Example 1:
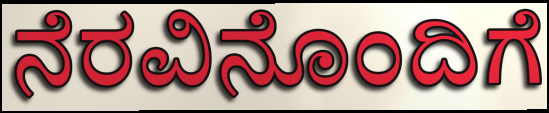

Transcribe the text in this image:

ನೆರವಿನೊಂದಿಗೆ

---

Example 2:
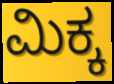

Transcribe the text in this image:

ಮಿಕ್ಕ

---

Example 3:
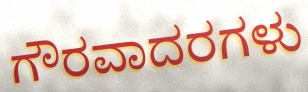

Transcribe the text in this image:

ಗೌರವಾದರಗಳು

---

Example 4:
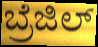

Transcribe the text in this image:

ಬ್ರೆಜಿಲ್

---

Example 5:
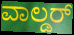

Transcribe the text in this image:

ವಾಲ್ಡರ್